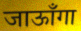
जाऊाँगा